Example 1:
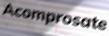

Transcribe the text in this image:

Acomprosate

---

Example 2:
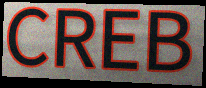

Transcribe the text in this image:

CREB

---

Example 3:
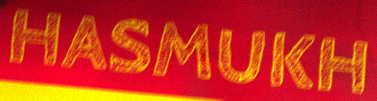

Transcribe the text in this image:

HASMUKH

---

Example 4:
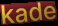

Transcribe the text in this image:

kade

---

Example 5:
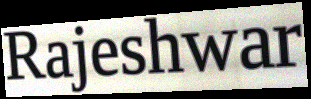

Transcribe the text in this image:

Rajeshwar